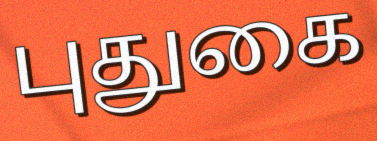
புதுகை